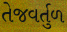
તેજવર્તુળ